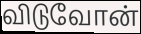
விடுவோன்